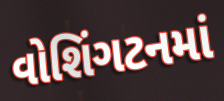
વોશિંગટનમાં